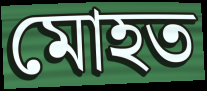
মোহত